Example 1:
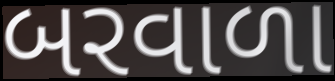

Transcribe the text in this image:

બરવાળા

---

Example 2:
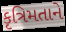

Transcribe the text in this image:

કૃત્રિમતાને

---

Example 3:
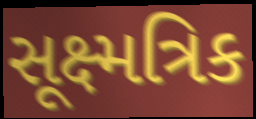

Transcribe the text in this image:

સૂક્ષ્મત્રિક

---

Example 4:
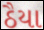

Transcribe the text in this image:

ઠૈયા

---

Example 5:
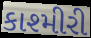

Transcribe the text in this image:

કાશ્મીરી